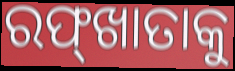
ରଫ୍‌ଖାତାକୁ